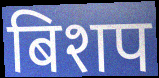
बिशप